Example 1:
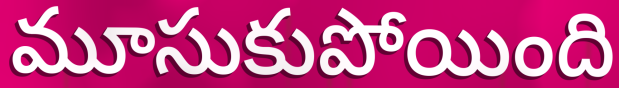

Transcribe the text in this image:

మూసుకుపోయింది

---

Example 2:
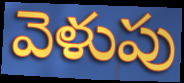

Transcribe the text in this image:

వెళుపు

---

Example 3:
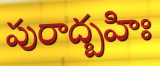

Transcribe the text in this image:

పురాద్బహిః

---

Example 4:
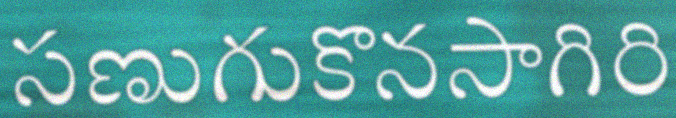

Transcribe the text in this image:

సణుగుకొనసాగిరి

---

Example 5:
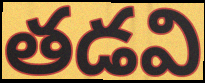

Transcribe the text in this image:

తడవి